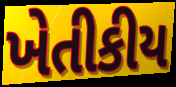
ખેતીકીય